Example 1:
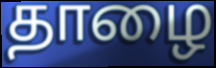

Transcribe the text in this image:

தாழை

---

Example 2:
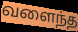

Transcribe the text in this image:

வளைந்த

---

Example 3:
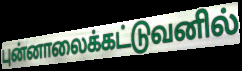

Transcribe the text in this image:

புன்னாலைக்கட்டுவனில்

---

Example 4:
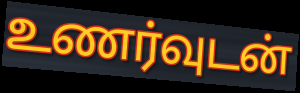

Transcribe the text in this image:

உணர்வுடன்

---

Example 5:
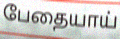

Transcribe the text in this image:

பேதையாய்